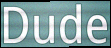
Dude